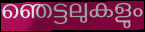
ഞെട്ടലുകളും